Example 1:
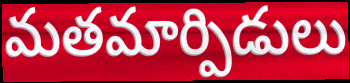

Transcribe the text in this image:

మతమార్పిడులు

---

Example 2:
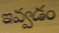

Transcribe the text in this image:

ఇవ్వడం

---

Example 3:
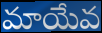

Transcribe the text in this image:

మాయేవ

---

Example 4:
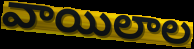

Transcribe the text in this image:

వాయిలాల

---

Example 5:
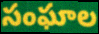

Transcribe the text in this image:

సంఘాల